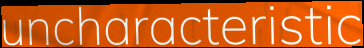
uncharacteristic